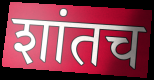
शांतच